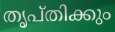
തൃപ്തിക്കും